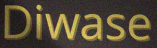
Diwase